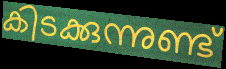
കിടക്കുന്നുണ്ട്